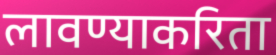
लावण्याकरिता